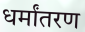
धर्मांतरण